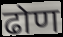
ढोण